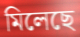
মিলেছে